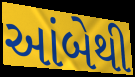
આંબેથી